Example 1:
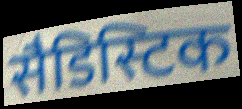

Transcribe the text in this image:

सैडिस्टिक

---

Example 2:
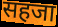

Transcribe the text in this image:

सहजा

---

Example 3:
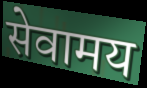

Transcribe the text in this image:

सेवामय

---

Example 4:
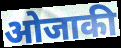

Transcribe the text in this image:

ओजाकी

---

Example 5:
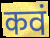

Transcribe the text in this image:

कवं